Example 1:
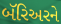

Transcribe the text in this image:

બૅરિઅરને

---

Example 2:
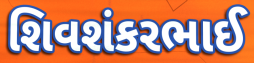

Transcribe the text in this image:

શિવશંકરભાઈ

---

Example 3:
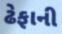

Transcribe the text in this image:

ઢેફાની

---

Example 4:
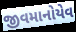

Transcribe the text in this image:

જીવમાનોયેવ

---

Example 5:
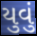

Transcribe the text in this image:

યુવું